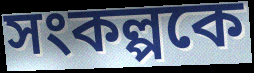
সংকল্পকে